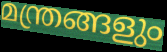
മന്ത്രങ്ങളും